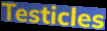
Testicles